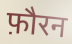
फ़ौरन